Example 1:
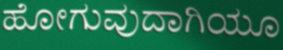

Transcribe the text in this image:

ಹೋಗುವುದಾಗಿಯೂ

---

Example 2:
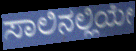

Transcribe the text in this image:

ಸಾಲಿನಲ್ಲಿಯೇ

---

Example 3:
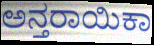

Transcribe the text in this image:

ಅನ್ತರಾಯಿಕಾ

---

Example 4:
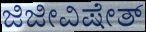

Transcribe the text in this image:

ಜಿಜೀವಿಷೇತ್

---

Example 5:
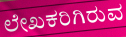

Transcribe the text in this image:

ಲೇಖಕರಿಗಿರುವ